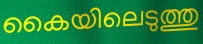
കൈയിലെടുത്തു